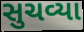
સુચવ્યા